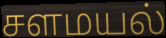
சளமயல்